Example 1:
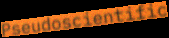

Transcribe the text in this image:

Pseudoscientific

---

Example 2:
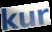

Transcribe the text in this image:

kur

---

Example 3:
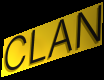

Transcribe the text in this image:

CLAN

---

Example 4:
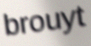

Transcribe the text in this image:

brouyt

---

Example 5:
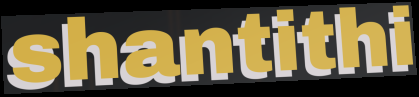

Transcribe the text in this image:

shantithi